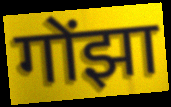
गोंझा